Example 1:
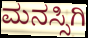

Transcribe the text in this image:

ಮನಸ್ಸಿಗಿ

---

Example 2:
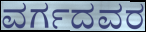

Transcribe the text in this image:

ವರ್ಗದವರ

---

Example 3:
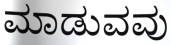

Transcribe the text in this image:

ಮಾಡುವವು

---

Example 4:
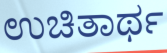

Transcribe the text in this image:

ಉಚಿತಾರ್ಥ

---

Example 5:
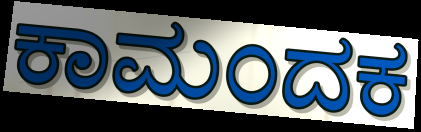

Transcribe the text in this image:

ಕಾಮಂದಕ